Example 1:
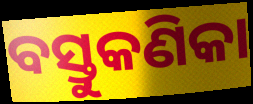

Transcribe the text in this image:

ବସ୍ତୁକଣିକା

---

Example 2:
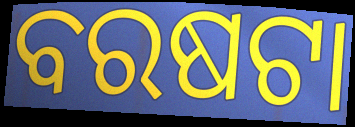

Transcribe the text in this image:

ବରଷଟା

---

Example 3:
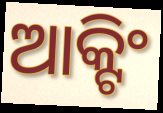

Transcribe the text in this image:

ଆକ୍ଟିଂ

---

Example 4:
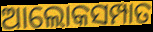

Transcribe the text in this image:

ଆଲୋକସମ୍ପାତ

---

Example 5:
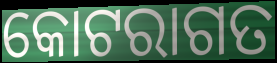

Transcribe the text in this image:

କୋଟରାଗତ